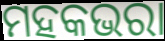
ମହକଭରା